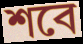
শবে